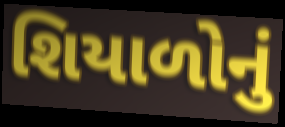
શિયાળોનું